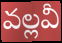
వల్లవీ